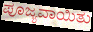
ಪೂಜ್ಯವಾಯಿತು